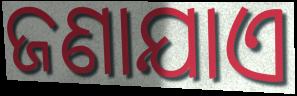
ଜଣାଯାଏ